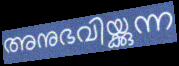
അനുഭവിയ്ക്കുന്ന